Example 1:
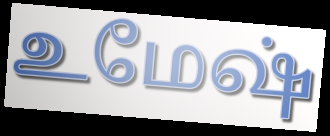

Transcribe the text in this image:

உமேஷ்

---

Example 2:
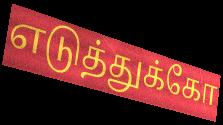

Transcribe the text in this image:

எடுத்துக்கோ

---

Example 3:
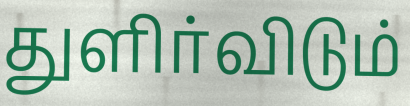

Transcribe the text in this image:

துளிர்விடும்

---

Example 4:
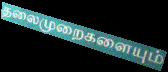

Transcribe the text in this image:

தலைமுறைகளையும்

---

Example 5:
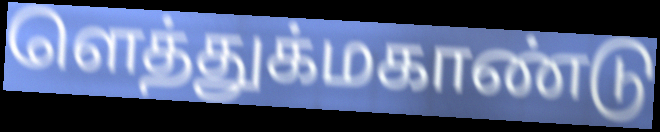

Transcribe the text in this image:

ளெத்துக்மகாண்டு